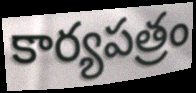
కార్యపత్రం